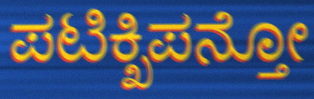
ಪಟಿಕ್ಖಿಪನ್ತೋ